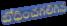
బోధించగలిగిన